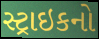
સ્ટ્રાઇકનો